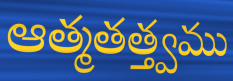
ఆత్మతత్త్వము